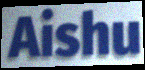
Aishu